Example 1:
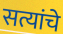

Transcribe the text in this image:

सत्यांचे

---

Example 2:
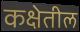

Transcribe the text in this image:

कक्षेतील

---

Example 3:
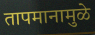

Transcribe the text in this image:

तापमानामुळे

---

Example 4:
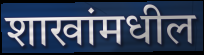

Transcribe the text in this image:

शाखांमधील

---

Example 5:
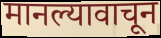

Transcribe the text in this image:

मानल्यावाचून